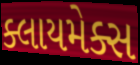
ક્લાયમેક્સ